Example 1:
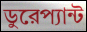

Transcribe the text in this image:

ডুরেপ্যান্ট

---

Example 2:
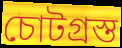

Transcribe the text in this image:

চোটগ্রস্ত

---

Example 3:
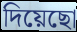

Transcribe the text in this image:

দিয়েছো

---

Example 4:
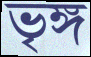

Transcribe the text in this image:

ভৃঙ্গ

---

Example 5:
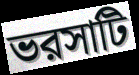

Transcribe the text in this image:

ভরসাটি